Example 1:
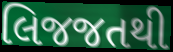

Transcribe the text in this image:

લિજજતથી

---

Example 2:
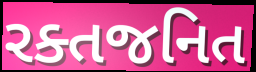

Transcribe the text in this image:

રક્તજનિત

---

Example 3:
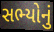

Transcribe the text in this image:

સભ્યોનું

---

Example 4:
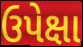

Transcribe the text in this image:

ઉપેક્ષા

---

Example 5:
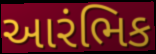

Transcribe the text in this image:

આરંભિક